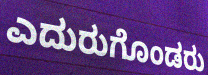
ಎದುರುಗೊಂಡರು